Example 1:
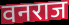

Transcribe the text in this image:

वनराज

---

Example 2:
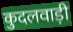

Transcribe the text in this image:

कुदलवाड़ी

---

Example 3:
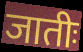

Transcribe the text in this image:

जातीः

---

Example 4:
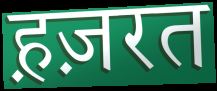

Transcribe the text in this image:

ह़ज़रत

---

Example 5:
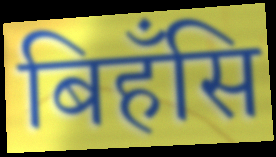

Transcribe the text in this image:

बिहँसि